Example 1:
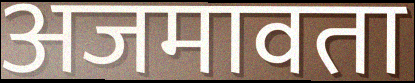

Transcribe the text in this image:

अजमावता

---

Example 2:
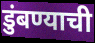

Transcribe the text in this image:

डुंबण्याची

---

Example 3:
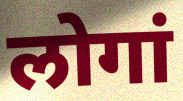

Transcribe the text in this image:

लोगां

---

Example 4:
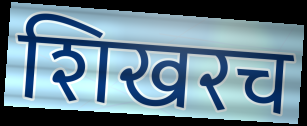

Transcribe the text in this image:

शिखरच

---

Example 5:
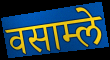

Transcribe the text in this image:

वसाम्ले